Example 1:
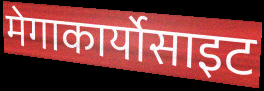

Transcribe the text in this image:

मेगाकार्योसाइट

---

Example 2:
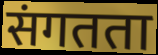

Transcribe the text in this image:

संगतता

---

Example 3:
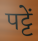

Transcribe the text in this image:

पट्टें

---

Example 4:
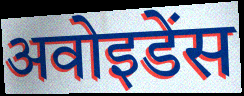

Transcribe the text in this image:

अवोइडेंस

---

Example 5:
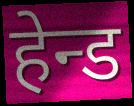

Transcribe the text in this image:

हेन्ड